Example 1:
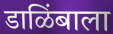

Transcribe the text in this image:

डाळिंबाला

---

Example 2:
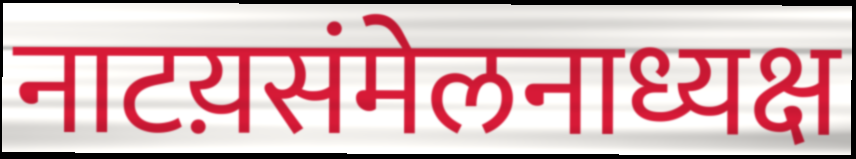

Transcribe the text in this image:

नाटय़संमेलनाध्यक्ष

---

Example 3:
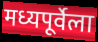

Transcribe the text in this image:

मध्यपूर्वेला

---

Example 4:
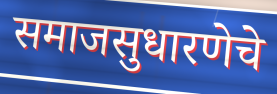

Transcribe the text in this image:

समाजसुधारणेचे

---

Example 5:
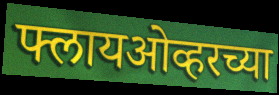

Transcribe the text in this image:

फ्लायओव्हरच्या